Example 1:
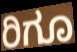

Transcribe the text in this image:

ರಿಗೂ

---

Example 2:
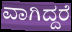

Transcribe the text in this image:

ವಾಗಿದ್ದರೆ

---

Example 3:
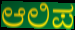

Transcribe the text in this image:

ಆಲಿಪ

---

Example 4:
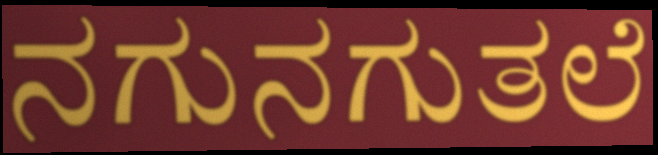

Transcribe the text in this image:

ನಗುನಗುತಲೆ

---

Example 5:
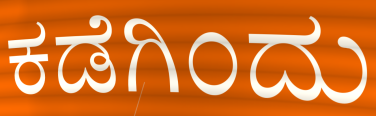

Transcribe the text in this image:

ಕಡೆಗಿಂದು